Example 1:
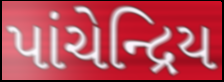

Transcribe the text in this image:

પાંચેન્દ્રિય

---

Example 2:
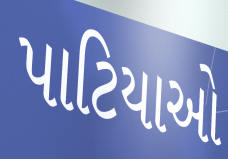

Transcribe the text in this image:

પાટિયાઓ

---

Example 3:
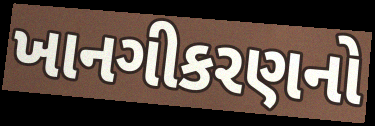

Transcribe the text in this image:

ખાનગીકરણનો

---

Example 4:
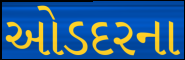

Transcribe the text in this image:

ઓડદરના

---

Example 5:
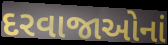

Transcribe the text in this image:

દરવાજાઓનાં